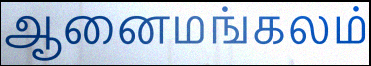
ஆனைமங்கலம்